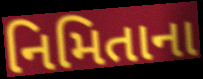
નિમિતાના